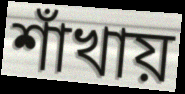
শাঁখায়